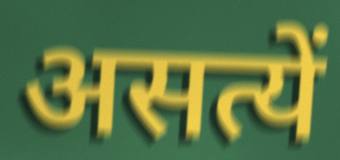
असत्यें